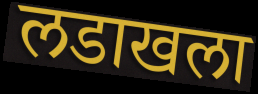
लडाखला